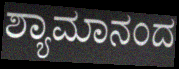
ಶ್ಯಾಮಾನಂದ